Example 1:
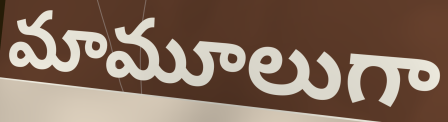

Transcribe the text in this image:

మామూలుగా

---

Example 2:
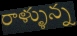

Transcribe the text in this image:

రాళ్ళున్న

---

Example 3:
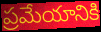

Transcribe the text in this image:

ప్రమేయానికి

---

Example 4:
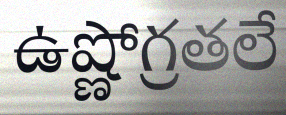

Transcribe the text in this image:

ఉష్ణోగ్రతలే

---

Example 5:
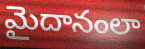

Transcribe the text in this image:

మైదానంలా